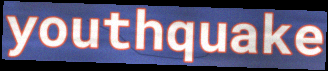
youthquake